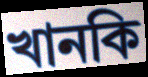
খানকি